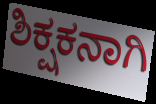
ಶಿಕ್ಷಕನಾಗಿ